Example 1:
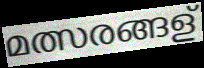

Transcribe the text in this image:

മത്സരങ്ങള്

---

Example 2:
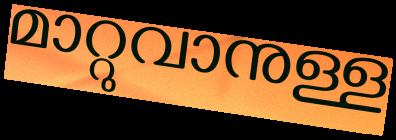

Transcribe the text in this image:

മാറ്റുവാനുള്ള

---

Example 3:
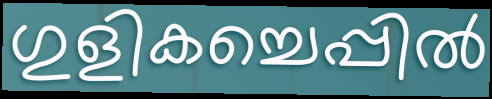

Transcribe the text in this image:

ഗുളികച്ചെപ്പിൽ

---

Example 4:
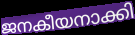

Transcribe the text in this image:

ജനകീയനാക്കി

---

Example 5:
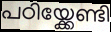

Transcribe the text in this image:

പഠിയ്ക്കേണ്ടി